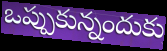
ఒప్పుకున్నందుకు